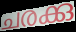
ചരക്കു